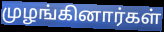
முழங்கினார்கள்